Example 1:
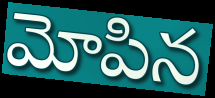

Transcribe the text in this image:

మోపిన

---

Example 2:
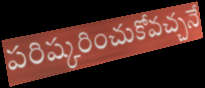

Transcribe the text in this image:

పరిష్కరించుకోవచ్చనే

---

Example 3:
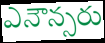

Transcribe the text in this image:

ఎనౌన్సరు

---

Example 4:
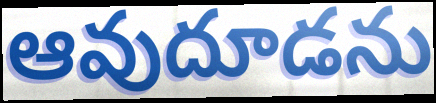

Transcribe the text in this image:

ఆవుదూడను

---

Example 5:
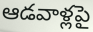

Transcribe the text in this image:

ఆడవాళ్లపై